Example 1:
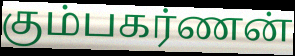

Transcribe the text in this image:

கும்பகர்ணன்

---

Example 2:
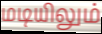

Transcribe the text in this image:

மடியிலும்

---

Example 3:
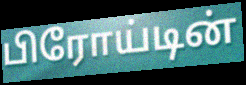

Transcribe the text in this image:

பிரோய்டின்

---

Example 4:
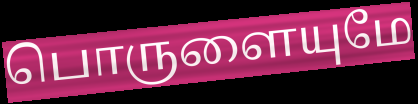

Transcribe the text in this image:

பொருளையுமே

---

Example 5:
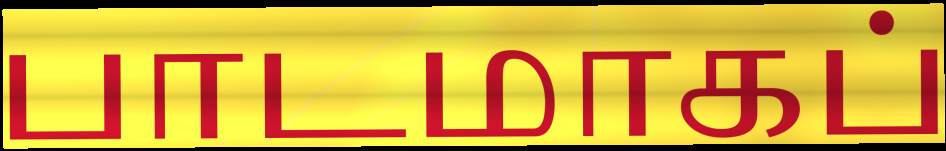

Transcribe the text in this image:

பாடமாகப்